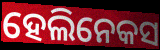
ହେଲିନେକସ